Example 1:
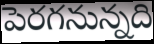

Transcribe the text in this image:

పెరగనున్నది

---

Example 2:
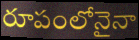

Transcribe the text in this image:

రూపంలోనైనా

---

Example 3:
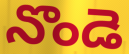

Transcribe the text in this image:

నొండె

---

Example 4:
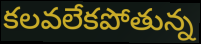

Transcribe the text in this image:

కలవలేకపోతున్న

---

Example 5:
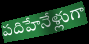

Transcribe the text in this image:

పదిహేనేళ్లుగా